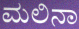
ಮಲಿನಾ